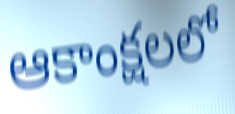
ఆకాంక్షలలో